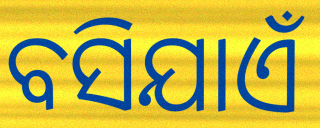
ବସିଯାଏଁ